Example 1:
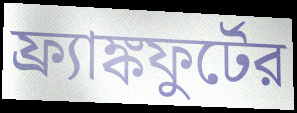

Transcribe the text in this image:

ফ্র্যাঙ্কফুর্টের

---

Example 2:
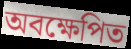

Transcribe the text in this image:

অবক্ষেপিত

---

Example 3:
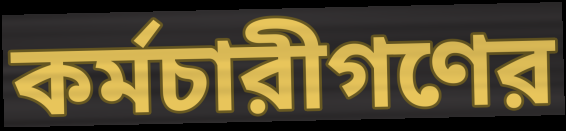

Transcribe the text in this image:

কর্মচারীগণের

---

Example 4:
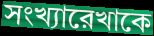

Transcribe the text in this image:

সংখ্যারেখাকে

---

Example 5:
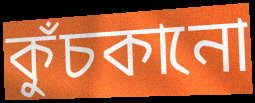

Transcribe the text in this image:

কুঁচকানো